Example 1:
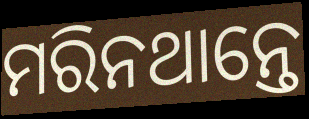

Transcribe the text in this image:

ମରିନଥାନ୍ତେ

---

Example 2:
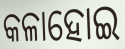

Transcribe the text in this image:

କଳାହୋଇ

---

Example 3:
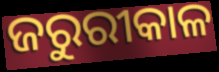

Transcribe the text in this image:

ଜରୁରୀକାଳ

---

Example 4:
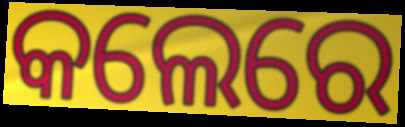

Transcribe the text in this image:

କଲେରେ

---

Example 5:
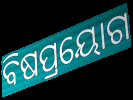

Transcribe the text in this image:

ବିଷପ୍ରୟୋଗ